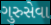
ગુરુસેવા